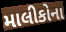
માલીકોના